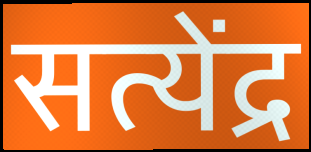
सत्येंद्र